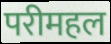
परीमहल